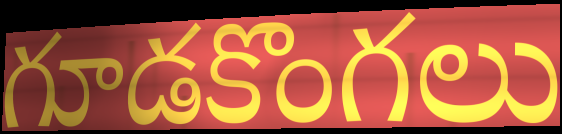
గూడకొంగలు